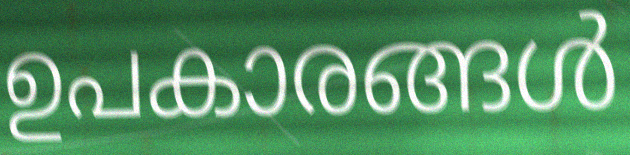
ഉപകാരങ്ങൾ